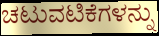
ಚಟುವಟಿಕೆಗಳನ್ನು